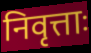
निवृत्ताः